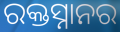
ରକ୍ତସ୍ନାନର